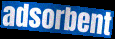
adsorbent